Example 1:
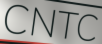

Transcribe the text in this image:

CNTC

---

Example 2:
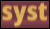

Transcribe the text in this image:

syst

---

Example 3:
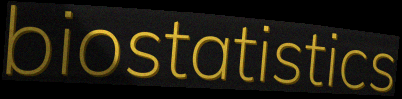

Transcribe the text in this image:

biostatistics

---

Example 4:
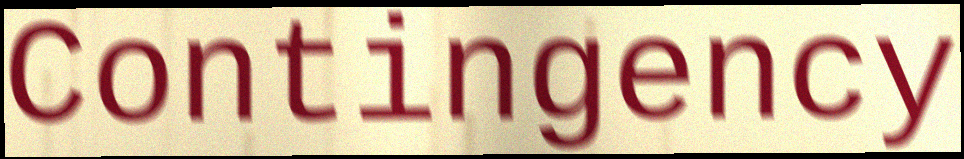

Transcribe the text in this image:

Contingency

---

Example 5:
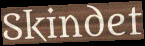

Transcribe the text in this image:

Skindet